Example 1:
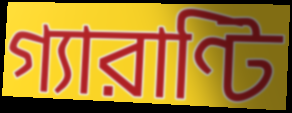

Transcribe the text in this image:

গ্যারাণ্টি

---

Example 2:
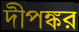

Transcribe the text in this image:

দীপঙ্কর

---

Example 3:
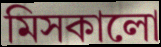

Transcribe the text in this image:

মিসকালো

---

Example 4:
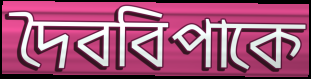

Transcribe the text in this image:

দৈববিপাকে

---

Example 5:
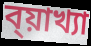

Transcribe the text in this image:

ব্য়াখ্যা